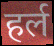
हर्ल